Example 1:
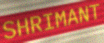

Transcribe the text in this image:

SHRIMANT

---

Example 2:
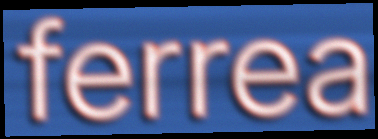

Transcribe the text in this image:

ferrea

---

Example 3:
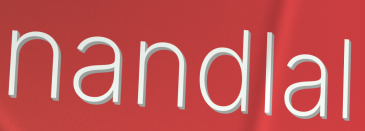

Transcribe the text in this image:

nandlal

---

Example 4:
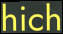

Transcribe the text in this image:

hich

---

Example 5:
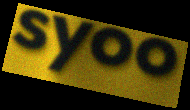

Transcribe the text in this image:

syoo